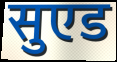
सुएड